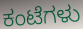
ಕಂಟೆಗಳು